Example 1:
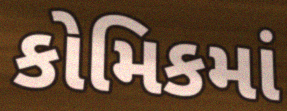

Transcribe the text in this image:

કોમિકમાં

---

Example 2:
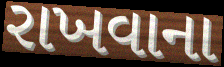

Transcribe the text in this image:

રાખવાના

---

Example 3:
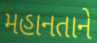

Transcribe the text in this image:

મહાનતાને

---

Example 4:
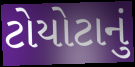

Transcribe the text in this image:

ટોયોટાનું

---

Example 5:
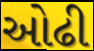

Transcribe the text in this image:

ઓઢી